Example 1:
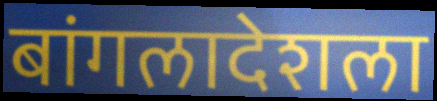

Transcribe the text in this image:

बांगलादेशला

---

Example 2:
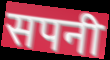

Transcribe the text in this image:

सपनी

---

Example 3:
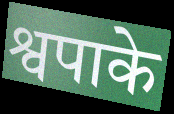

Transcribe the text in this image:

श्वपाके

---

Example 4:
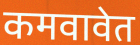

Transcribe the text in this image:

कमवावेत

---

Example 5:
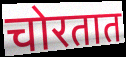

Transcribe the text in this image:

चोरतात